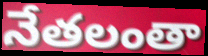
నేతలంతా